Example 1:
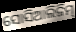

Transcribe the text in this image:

ସୋସିଆଲିଜିମ୍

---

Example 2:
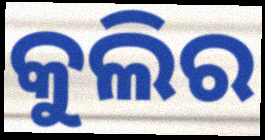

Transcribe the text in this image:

କୁଲିର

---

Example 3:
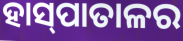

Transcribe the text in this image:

ହାସ୍‍ପାତାଳର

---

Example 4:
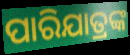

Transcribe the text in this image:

ପାରିଯାତ୍ରଙ୍କ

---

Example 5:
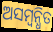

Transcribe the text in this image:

ଅସମ୍ବନ୍ଧିତ